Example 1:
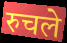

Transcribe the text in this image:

रुचले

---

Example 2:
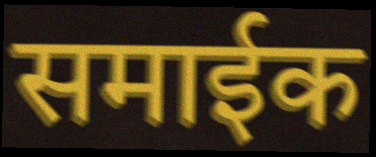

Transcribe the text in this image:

समाईक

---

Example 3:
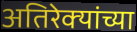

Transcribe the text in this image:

अतिरेक्‍यांच्या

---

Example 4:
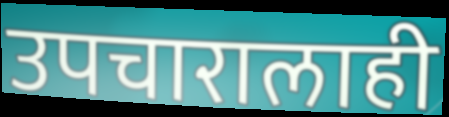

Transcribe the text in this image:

उपचारालाही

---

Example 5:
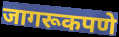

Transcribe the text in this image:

जागरूकपणे